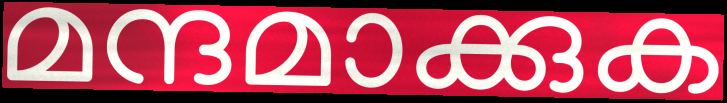
മന്ദമാക്കുക